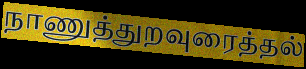
நாணுத்துறவுரைத்தல்